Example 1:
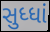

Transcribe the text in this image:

સુધ્ધાં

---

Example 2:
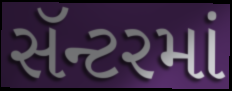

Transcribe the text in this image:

સૅન્ટરમાં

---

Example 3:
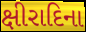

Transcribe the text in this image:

ક્ષીરાદિના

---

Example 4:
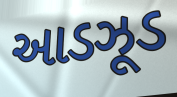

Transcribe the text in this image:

આડઝૂડ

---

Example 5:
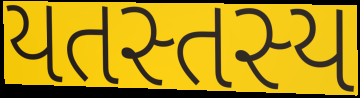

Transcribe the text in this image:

યતસ્તસ્ય